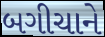
બગીચાને